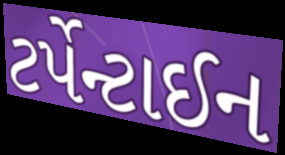
ટર્પેન્ટાઈન